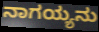
ನಾಗಯ್ಯನು